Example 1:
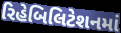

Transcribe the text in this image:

રિહેબિલિટેશનમાં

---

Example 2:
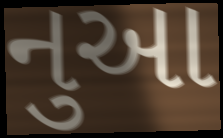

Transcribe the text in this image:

નુઆ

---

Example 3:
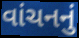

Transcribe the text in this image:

વાંચનનું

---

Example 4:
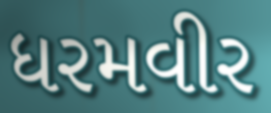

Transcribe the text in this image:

ધરમવીર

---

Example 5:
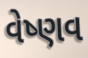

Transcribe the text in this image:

વેષ્ણવ